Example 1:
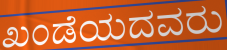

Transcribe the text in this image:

ಖಂಡೆಯದವರು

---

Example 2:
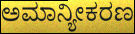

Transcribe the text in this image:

ಅಮಾನ್ಯೀಕರಣ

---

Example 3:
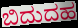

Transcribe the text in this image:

ಬಿದುದಹ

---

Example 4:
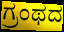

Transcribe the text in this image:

ಗ್ರಂಥದ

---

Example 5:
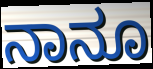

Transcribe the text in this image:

ನಾನೂ